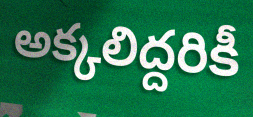
అక్కలిద్దరికీ